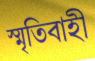
স্মৃতিবাহী